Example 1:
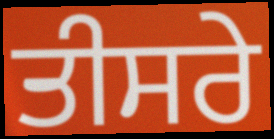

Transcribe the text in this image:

ਤੀਸਰੇ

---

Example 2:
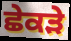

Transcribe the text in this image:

ਛੇਕੜੇ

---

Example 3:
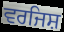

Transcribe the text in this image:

ਵਰਜਿਸ਼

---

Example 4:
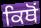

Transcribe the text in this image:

ਕਿਥੋਂ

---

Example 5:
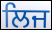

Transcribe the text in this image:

ਲਿਜ